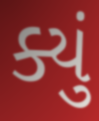
ક્યું